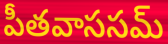
పీతవాససమ్